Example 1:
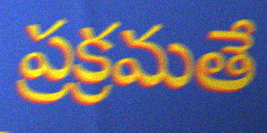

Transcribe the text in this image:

ప్రక్రమతే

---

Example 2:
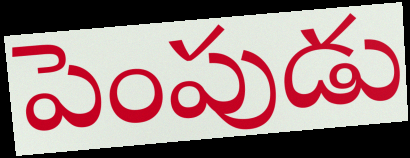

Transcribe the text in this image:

పెంపుడు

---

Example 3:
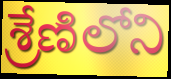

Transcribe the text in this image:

శ్రేణిలోని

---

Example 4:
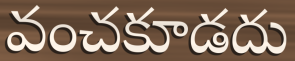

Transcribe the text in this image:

వంచకూడదు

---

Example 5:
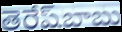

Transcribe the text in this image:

తెరేష్‌బాబు